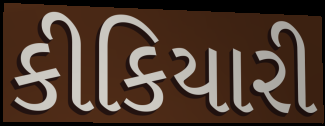
કીકિયારી